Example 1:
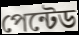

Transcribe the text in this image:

পেন্টেড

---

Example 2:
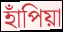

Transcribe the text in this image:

হাঁপিয়া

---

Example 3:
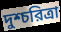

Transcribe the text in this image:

দুশ্চরিত্রা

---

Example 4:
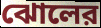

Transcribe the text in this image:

ঝোলের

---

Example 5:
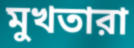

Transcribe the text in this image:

মুখতারা